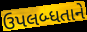
ઉપલબ્ધતાને